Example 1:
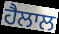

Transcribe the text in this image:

ਹੈਲਾਲ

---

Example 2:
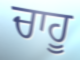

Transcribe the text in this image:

ਚਾਹੂ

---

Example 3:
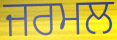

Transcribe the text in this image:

ਜਰਮਲ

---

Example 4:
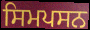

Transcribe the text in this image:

ਸਿਮਪਸਨ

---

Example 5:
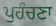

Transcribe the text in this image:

ਪੁਹੰਚਣਾ